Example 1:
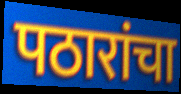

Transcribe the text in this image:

पठारांचा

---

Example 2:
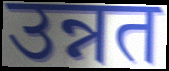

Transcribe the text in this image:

उन्नत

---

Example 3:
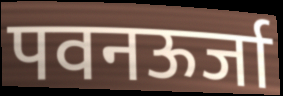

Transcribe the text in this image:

पवनऊर्जा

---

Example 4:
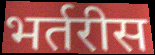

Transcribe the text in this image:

भर्तरीस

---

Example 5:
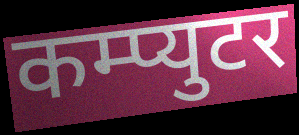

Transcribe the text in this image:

कम्प्युटर